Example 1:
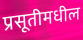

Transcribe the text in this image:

प्रसूतीमधील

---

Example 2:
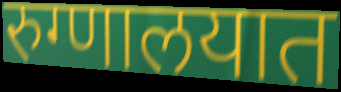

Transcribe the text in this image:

रुग्णालयात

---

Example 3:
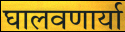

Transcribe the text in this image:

घालवणार्या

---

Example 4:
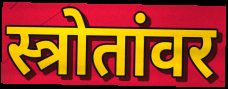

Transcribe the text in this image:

स्त्रोतांवर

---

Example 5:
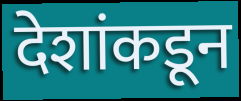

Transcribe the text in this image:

देशांकडून